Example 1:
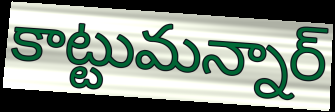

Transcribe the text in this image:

కాట్టుమన్నార్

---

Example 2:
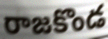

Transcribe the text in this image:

రాజకొండ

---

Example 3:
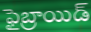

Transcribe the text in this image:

ఫైబ్రాయిడ్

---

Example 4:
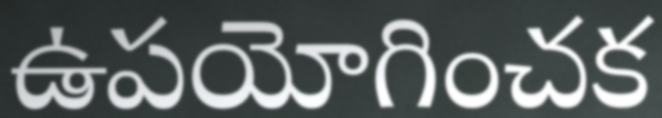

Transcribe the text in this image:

ఉపయోగించక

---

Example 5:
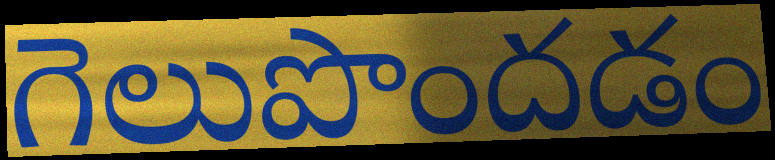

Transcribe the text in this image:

గెలుపొందడం